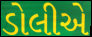
ડોલીએ